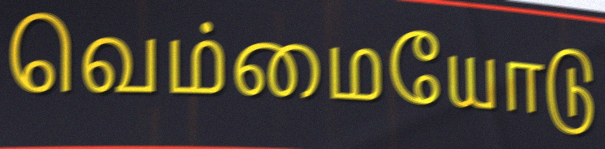
வெம்மையோடு